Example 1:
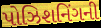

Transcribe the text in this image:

પોઝિશનિંગની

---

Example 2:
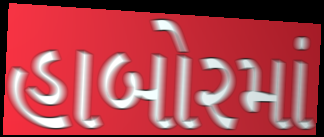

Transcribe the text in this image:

હાબોરમાં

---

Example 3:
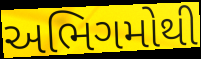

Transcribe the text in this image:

અભિગમોથી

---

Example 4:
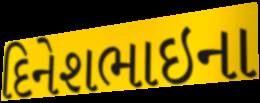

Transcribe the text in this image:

દિનેશભાઇના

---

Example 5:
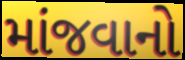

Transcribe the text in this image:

માંજવાનો